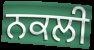
ਨਕਲੀ